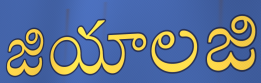
జియాలజి